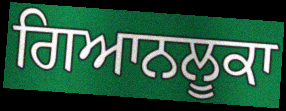
ਗਿਆਨਲੂਕਾ